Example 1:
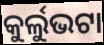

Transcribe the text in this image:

କୁର୍ଲୁଭଟା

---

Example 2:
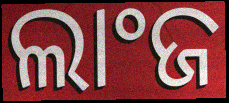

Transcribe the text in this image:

ଲାଂଜ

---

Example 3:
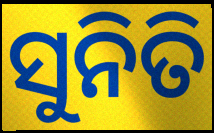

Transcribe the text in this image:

ସୁନିତି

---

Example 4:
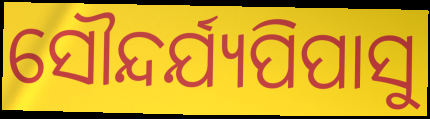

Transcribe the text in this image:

ସୌନ୍ଦର୍ଯ୍ୟପିପାସୁ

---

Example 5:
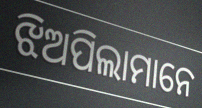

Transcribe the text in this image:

ଝିଅପିଲାମାନେ